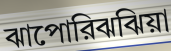
ঝাপোরিঝঝিয়া